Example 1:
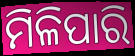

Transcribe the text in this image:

ମିଳିପାରି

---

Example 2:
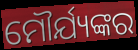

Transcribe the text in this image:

ମୌର୍ଯ୍ୟଙ୍କର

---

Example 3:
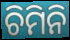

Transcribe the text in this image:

ଚିମିନି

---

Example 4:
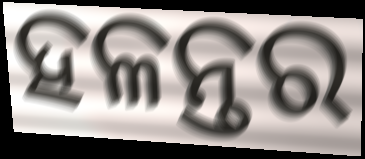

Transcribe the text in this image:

ହଳନ୍ତର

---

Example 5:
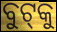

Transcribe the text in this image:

ବୁଟ୍‌କୁ